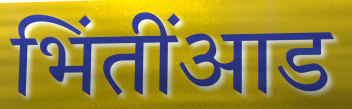
भिंतींआड